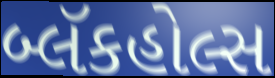
બ્લૅકહોલ્સ